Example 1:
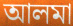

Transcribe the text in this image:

আলমা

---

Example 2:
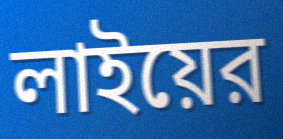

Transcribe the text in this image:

লাইয়ের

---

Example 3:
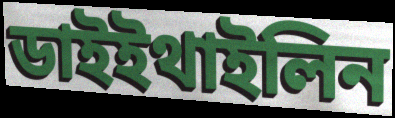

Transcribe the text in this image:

ডাইইথাইলিন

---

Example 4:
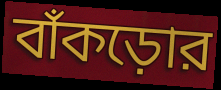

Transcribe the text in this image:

বাঁকড়োর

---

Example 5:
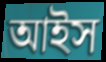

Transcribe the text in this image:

আইস